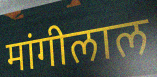
मांगीलाल